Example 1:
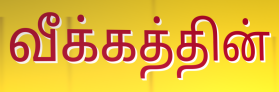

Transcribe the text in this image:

வீக்கத்தின்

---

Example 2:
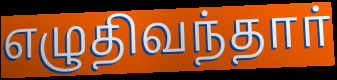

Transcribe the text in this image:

எழுதிவந்தார்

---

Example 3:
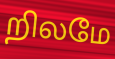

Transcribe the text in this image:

றிலமே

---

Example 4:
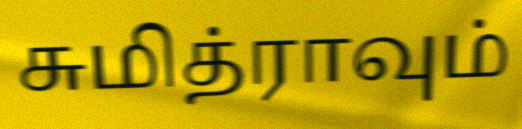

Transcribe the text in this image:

சுமித்ராவும்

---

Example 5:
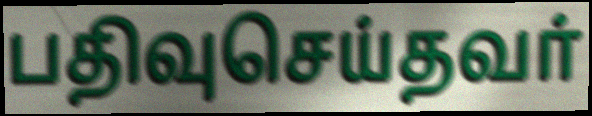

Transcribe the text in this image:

பதிவுசெய்தவர்